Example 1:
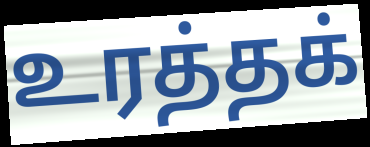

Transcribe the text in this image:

உரத்தக்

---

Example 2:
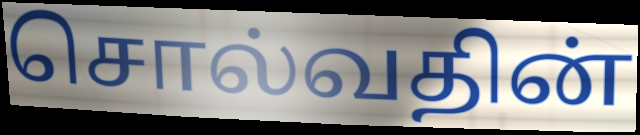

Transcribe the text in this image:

சொல்வதின்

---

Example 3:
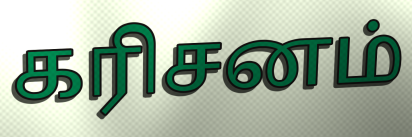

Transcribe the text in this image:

கரிசனம்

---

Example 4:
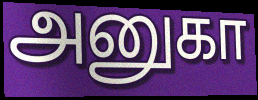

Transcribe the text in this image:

அனுகா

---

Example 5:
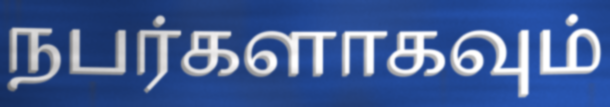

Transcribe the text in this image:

நபர்களாகவும்